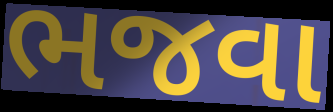
ભજવા